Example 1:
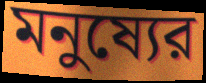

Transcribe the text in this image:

মনুষ্যের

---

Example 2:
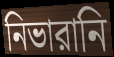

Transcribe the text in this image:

নিভারানি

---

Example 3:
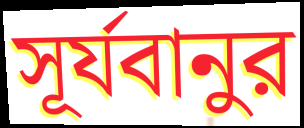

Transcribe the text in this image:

সূর্যবানুর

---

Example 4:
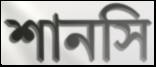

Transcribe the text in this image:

শানসি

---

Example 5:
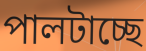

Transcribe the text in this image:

পালটাচ্ছে